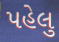
પહેલુ